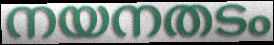
നയനതടം